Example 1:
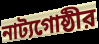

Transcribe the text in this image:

নাট্যগোষ্ঠীর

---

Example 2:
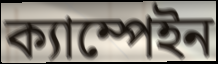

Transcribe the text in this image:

ক্যাম্পেইন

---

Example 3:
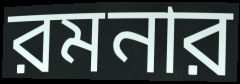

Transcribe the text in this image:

রমনার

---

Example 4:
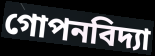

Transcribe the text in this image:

গোপনবিদ্যা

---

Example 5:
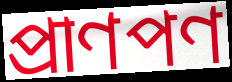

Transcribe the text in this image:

প্রাণপণ